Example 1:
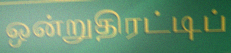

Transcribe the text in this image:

ஒன்றுதிரட்டிப்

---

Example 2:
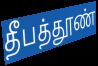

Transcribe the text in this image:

தீபத்தூண்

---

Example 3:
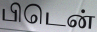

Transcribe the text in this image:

பிடென்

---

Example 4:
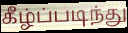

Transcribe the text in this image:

கீழ்ப்படிந்து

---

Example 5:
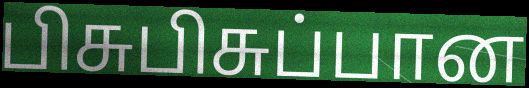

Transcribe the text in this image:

பிசுபிசுப்பான